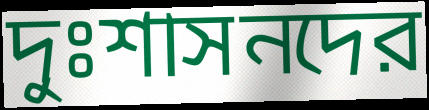
দুঃশাসনদের